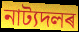
নাট্যদলৰ